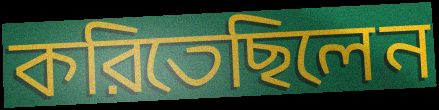
করিতেছিলেন